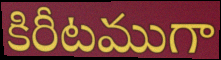
కిరీటముగా